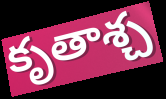
కృతాశ్చ